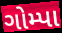
ગોમ્પા